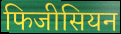
फिजीसियन